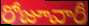
రోజూవారీ